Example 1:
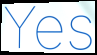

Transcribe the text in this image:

Yes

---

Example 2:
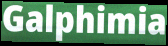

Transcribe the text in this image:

Galphimia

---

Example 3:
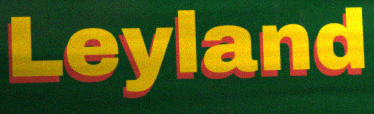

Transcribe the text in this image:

Leyland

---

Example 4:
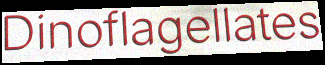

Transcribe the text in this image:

Dinoflagellates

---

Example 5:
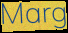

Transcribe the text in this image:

Marg